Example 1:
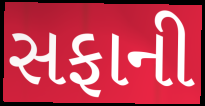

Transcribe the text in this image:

સફાની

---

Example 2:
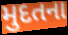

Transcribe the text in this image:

મુદતના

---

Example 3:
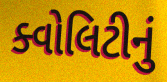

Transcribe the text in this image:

ક્વોલિટીનું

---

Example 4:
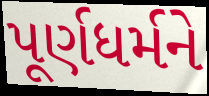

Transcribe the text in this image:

પૂર્ણધર્મને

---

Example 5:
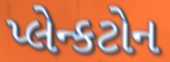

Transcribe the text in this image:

પ્લેન્કટોન